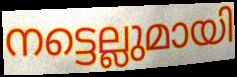
നട്ടെല്ലുമായി